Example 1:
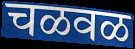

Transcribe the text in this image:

चळवळ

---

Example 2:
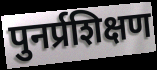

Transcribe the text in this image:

पुनर्प्रशिक्षण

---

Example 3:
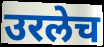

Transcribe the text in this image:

उरलेच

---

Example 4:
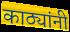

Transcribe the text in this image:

काठ्यांनी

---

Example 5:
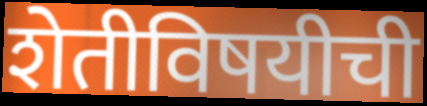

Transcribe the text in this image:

शेतीविषयीची